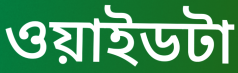
ওয়াইডটা